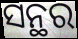
ସନ୍ଥର